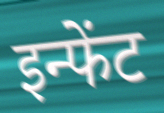
इन्फेंट